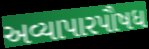
અવ્યાપારપૌષધ